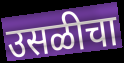
उसळीचा